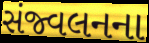
સંજ્વલનના